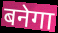
बनेगा